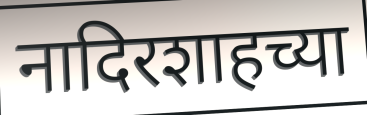
नादिरशाहच्या